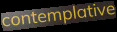
contemplative